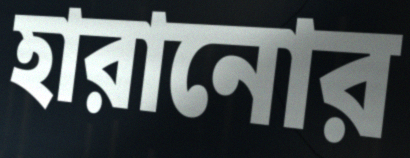
হারানোর